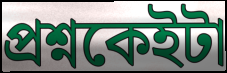
প্ৰশ্নকেইটা